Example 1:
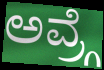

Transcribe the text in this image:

ಅವ್ರ್ಗೆ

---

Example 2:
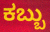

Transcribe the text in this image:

ಕಬ್ಬು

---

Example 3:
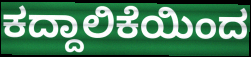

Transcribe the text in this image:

ಕದ್ದಾಲಿಕೆಯಿಂದ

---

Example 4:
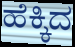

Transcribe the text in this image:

ಹೆಕ್ಕಿದ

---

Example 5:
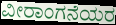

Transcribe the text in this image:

ವೀರಾಂಗನೆಯರ